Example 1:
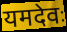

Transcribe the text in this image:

यमदेवः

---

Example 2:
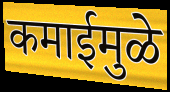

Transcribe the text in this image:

कमाईमुळे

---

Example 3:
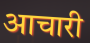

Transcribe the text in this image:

आचारी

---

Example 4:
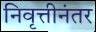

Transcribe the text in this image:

निवृत्तीनंतर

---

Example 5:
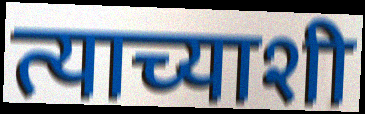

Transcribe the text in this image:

त्याच्याशी